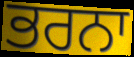
ਭਰਨਾ